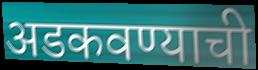
अडकवण्याची